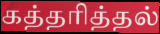
கத்தரித்தல்